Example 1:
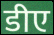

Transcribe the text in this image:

डीए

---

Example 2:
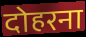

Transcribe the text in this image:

दोहरना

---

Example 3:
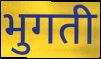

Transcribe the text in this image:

भुगती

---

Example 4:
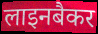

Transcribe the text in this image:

लाइनबैकर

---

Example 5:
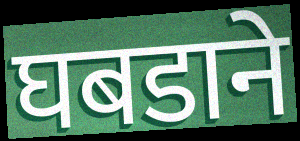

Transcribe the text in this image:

घबडाने